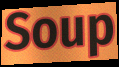
Soup